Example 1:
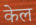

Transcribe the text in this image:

केल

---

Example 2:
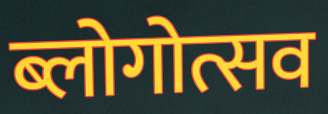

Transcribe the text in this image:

ब्लोगोत्सव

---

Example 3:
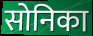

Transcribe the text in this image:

सोनिका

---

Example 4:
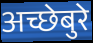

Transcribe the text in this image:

अच्छेबुरे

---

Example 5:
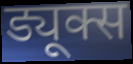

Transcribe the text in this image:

ड्यूक्स